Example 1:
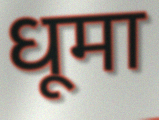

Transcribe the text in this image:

धूमा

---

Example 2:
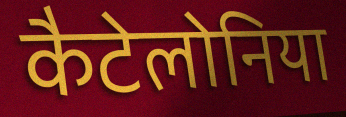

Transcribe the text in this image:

कैटेलोनिया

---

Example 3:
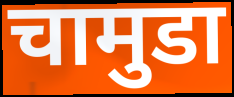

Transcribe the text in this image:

चामुडा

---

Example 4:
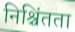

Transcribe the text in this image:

निश्चिंतता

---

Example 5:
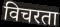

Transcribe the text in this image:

विचरता